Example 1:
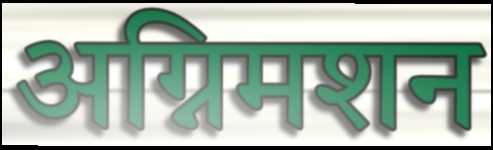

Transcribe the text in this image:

अग्निमशन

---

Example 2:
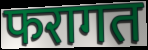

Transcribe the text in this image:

फरागत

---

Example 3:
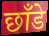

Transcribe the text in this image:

छाँडे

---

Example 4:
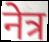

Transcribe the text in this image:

नेत्र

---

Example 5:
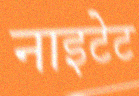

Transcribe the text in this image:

नाइटेट